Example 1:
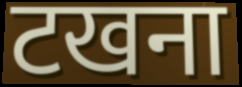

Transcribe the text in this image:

टखना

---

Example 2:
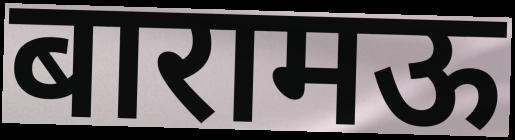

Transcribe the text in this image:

बारामऊ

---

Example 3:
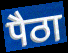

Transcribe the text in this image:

पैठा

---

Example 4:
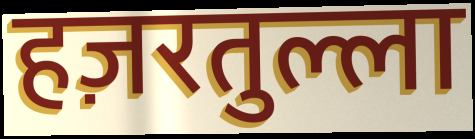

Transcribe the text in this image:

हज़रतुल्ला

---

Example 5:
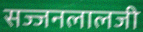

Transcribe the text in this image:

सज्जनलालजी